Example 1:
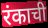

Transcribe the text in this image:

रंकाची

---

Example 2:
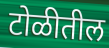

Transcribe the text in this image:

टोळीतील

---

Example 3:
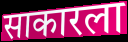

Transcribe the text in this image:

साकारला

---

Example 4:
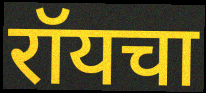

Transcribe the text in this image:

रॉयचा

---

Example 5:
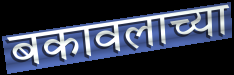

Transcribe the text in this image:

बकावलाच्या